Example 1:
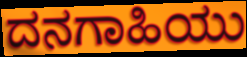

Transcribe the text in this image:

ದನಗಾಹಿಯು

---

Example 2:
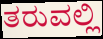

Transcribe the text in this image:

ತರುವಲ್ಲಿ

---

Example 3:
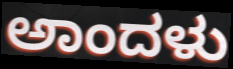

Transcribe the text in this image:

ಅಾಂದಳು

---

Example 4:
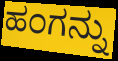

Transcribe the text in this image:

ಹಂಗನ್ನು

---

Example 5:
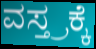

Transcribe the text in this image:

ವಸ್ತ್ರಕ್ಕೆ